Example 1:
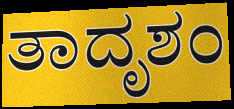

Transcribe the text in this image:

ತಾದೃಶಂ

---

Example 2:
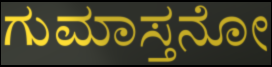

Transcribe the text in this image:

ಗುಮಾಸ್ತನೋ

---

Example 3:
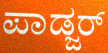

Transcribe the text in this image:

ಪಾಡ್ಜರ್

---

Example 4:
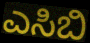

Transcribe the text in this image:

ಎಸಿಬಿ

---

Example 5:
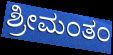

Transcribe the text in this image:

ಶ್ರೀಮಂತಂ